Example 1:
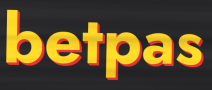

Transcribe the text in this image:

betpas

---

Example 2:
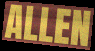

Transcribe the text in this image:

ALLEN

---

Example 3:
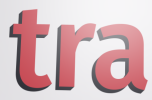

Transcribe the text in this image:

tra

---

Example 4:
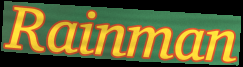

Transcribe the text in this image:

Rainman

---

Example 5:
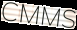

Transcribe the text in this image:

CMMS